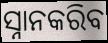
ସ୍ନାନକରିବ